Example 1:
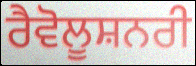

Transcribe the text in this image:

ਰੈਵੋਲੂਸ਼ਨਰੀ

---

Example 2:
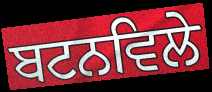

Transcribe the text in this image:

ਬਟਨਵਿਲੇ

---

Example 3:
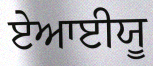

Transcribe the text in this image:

ਏਆਈਯੂ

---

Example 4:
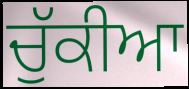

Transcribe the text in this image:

ਚੁੱਕੀਆ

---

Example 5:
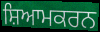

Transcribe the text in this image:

ਸ਼ਿਆਮਕਰਨ